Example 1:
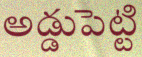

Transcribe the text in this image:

అడ్డుపెట్టి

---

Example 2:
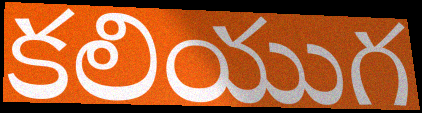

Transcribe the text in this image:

కలియుగ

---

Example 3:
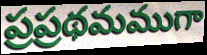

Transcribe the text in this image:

ప్రప్రథమముగా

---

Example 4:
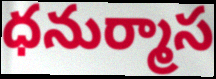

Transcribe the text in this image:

ధనుర్మాస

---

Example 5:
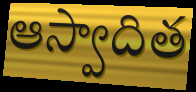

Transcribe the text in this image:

ఆస్వాదిత